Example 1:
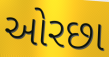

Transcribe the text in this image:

ઓરછા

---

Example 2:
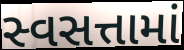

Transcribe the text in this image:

સ્વસત્તામાં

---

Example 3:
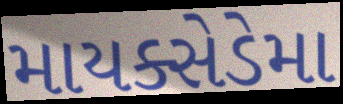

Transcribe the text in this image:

માયક્સેડેમા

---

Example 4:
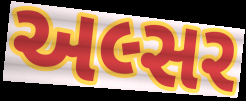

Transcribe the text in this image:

અલ્સર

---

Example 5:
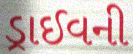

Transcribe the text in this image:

ડ્રાઈવની